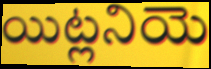
యిట్లనియె